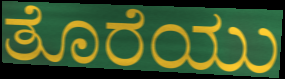
ತೊರೆಯು